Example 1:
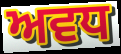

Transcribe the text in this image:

ਅਵਧ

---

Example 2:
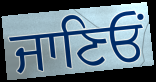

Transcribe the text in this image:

ਜਾਣਿਓਂ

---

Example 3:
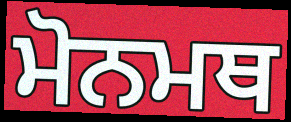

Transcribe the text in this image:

ਮੋਨਮਥ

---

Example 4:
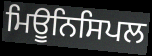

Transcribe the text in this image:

ਮਿਊਨਿਸਿਪਲ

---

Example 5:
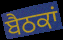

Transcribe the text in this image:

ਬੈਠਕਾਂ